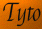
Tyto